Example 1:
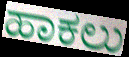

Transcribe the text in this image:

ಹಾಕಲು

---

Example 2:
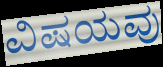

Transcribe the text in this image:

ವಿಷಯವು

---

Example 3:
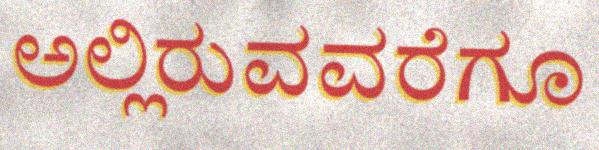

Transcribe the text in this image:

ಅಲ್ಲಿರುವವರೆಗೂ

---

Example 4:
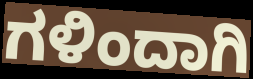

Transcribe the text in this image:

ಗಳಿಂದಾಗಿ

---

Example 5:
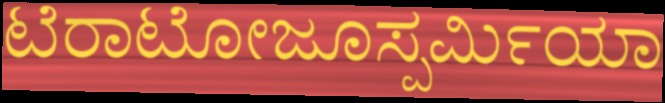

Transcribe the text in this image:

ಟೆರಾಟೋಜೂಸ್ಪರ್ಮಿಯಾ